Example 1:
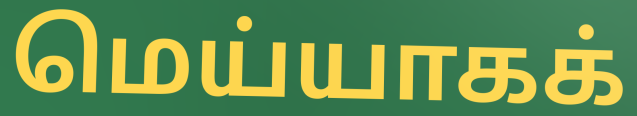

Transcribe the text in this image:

மெய்யாகக்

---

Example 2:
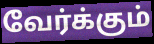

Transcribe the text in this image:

வேர்க்கும்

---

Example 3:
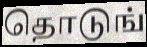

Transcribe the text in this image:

தொடுங்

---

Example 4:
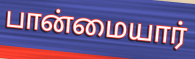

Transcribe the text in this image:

பான்மையார்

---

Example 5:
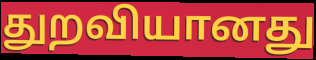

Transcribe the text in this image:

துறவியானது